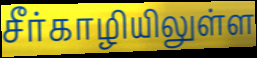
சீர்காழியிலுள்ள